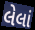
લેલાં